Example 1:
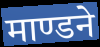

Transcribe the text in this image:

माण्डने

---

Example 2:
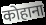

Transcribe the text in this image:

कोहाना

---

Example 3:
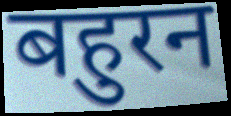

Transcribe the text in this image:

बहुरन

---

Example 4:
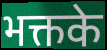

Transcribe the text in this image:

भक्तके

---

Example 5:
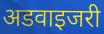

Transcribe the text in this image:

अडवाइजरी